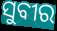
ସୁବୀର